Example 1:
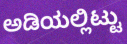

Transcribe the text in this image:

ಅಡಿಯಲ್ಲಿಟ್ಟು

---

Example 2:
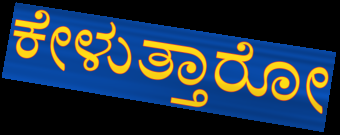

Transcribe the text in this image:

ಕೇಳುತ್ತಾರೋ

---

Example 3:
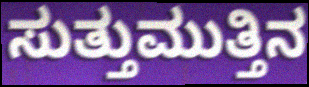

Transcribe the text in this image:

ಸುತ್ತುಮುತ್ತಿನ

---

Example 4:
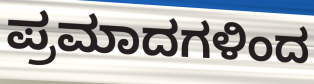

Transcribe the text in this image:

ಪ್ರಮಾದಗಳಿಂದ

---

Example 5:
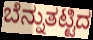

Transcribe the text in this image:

ಬೆನ್ನುತಟ್ಟಿದ